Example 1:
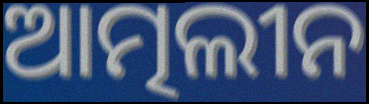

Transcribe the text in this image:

ଆତ୍ମଲୀନ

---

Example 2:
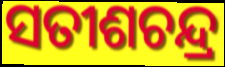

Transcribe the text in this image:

ସତୀଶଚନ୍ଦ୍ର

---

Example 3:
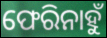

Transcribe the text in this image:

ଫେରିନାହୁଁ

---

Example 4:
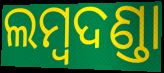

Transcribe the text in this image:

ଲମ୍ୱଦଣ୍ଡା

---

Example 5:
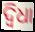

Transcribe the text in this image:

ଦ୍ବିଧା